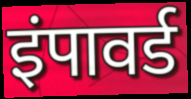
इंपावर्ड